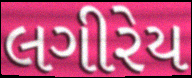
લગીરેય